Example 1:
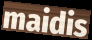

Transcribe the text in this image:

maidis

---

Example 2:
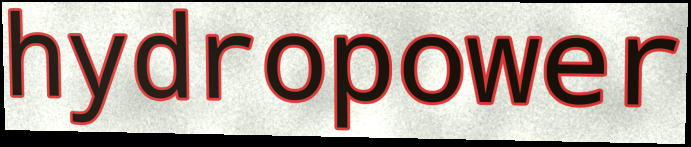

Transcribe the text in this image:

hydropower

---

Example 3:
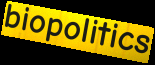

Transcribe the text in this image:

biopolitics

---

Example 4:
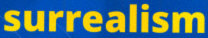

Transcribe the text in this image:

surrealism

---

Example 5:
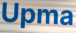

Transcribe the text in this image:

Upma